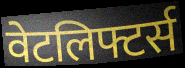
वेटलिफ्टर्स